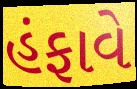
હંફાવે